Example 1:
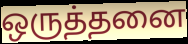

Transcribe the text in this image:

ஒருத்தனை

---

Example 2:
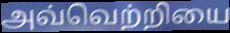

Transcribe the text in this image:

அவ்வெற்றியை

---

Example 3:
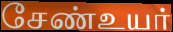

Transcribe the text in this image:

சேண்உயர்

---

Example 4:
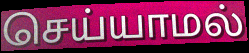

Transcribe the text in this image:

செய்யாமல்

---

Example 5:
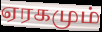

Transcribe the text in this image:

ஏரகமும்